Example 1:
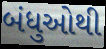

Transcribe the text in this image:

બંધુઓથી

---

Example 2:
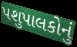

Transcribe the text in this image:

પશુપાલકોનું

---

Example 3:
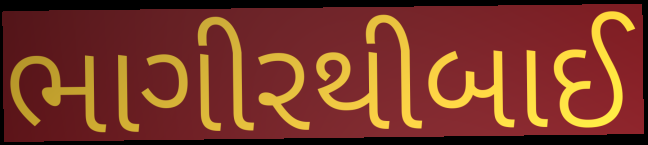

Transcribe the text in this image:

ભાગીરથીબાઈ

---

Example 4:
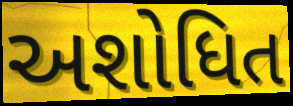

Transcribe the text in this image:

અશોધિત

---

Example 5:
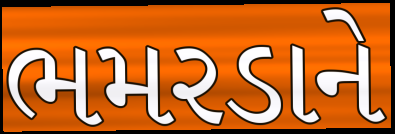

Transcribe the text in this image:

ભમરડાને